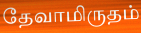
தேவாமிருதம்